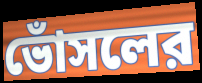
ভোঁসলের